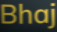
Bhaj